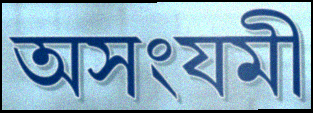
অসংযমী